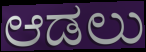
ಆಡಲು